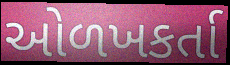
ઓળખકર્તા